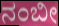
ನಂಬೀ